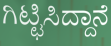
ಗಿಟ್ಟಿಸಿದ್ದಾನೆ